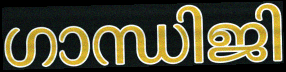
ഗാന്ധിജി